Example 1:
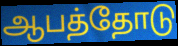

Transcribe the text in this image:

ஆபத்தோடு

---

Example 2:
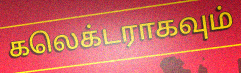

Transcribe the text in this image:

கலெக்டராகவும்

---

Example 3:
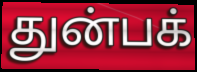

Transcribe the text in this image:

துன்பக்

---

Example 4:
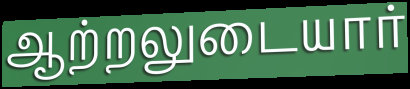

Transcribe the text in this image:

ஆற்றலுடையார்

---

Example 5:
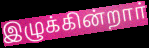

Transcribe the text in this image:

இழுக்கின்றார்